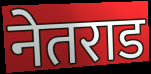
नेतराड